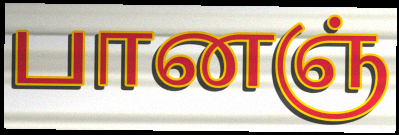
பானஞ்